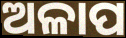
ଅଳାପ